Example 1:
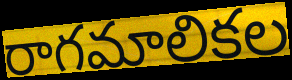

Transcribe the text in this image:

రాగమాలికల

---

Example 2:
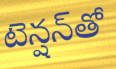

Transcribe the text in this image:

టెన్షన్‌తో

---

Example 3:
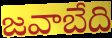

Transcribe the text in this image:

జవాబేది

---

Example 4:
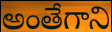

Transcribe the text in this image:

అంతేగాని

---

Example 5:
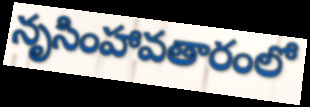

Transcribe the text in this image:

నృసింహావతారంలో